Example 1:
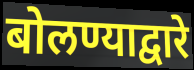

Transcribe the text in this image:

बोलण्याद्वारे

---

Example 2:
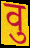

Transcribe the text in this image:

वु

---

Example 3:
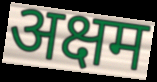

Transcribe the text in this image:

अक्षम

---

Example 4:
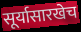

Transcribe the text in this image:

सूर्यासारखेच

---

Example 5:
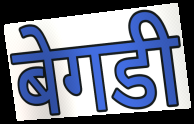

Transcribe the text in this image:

बेगडी